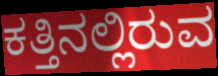
ಕತ್ತಿನಲ್ಲಿರುವ